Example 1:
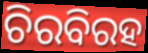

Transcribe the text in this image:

ଚିରବିରହ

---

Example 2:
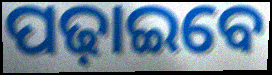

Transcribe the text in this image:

ପଢ଼ାଇବେ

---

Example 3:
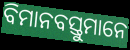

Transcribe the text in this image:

ବିମାନବସ୍ତୁମାନେ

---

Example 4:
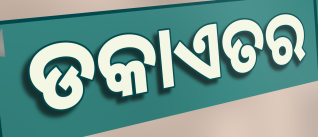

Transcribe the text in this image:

ଡକାଏତର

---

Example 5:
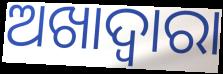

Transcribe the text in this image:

ଅଖାଦ୍ୱାରା